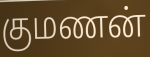
குமணன்